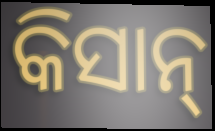
କିସାନ୍